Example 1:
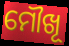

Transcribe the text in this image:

ମୌଖୂ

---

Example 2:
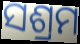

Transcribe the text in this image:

ସଶ୍ରମ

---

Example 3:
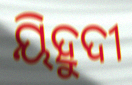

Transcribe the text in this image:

ୟିହୁଦୀ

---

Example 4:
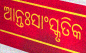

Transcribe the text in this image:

ଆନ୍ତଃସାଂସ୍କୃତିକ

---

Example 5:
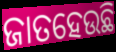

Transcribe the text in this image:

ଜାତହେଉଛି